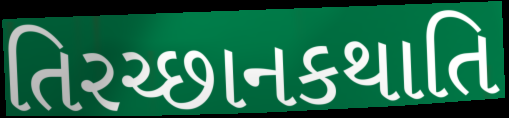
તિરચ્છાનકથાતિ